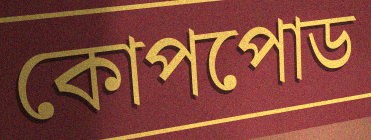
কোপপোড